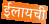
ईलायची